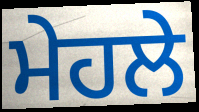
ਮੇਹਲੇ